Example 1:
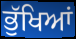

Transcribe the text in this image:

ਭੁੱਖਿਆਂ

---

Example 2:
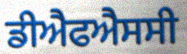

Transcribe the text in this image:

ਡੀਐਫਐਸਸੀ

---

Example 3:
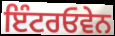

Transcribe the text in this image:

ਇੰਟਰਓਵੇਨ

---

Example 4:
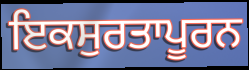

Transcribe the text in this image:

ਇਕਸੁਰਤਾਪੂਰਨ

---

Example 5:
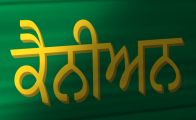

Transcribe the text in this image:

ਕੈਨੀਅਨ